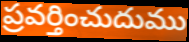
ప్రవర్తించుదుము